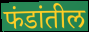
फंडांतील